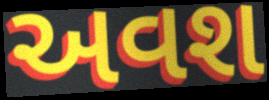
અવશ